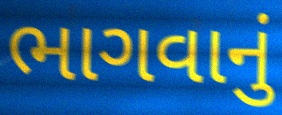
ભાગવાનું